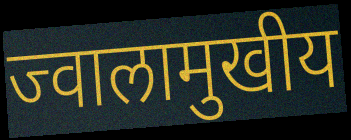
ज्वालामुखीय